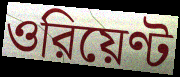
ওরিয়েণ্ট